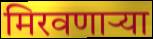
मिरवणाऱ्या